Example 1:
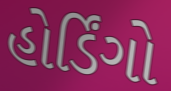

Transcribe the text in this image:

હોર્ડિંગો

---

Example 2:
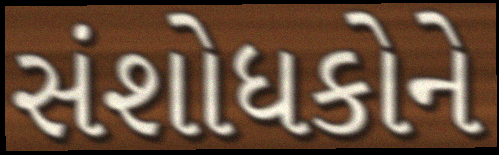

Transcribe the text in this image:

સંશોધકોને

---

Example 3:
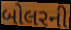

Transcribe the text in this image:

બોલરની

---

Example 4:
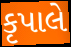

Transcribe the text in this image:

કૃપાલે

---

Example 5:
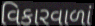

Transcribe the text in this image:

વિકારવાળાં